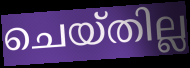
ചെയ്തില്ല